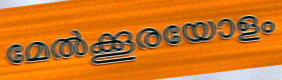
മേൽക്കൂരയോളം